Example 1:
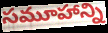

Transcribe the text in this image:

సమూహాన్ని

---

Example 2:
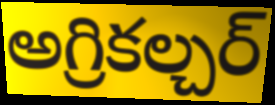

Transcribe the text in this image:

అగ్రికల్చర్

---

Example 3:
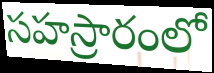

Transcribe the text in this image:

సహస్రారంలో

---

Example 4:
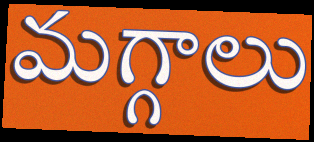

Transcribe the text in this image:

మగ్గాలు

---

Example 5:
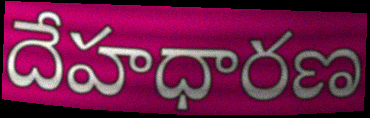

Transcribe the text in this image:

దేహధారణ